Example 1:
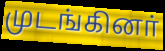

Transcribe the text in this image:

முடங்கினர்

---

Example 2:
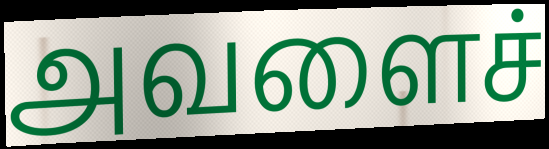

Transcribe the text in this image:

அவளைச்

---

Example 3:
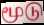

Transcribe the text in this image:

மூடு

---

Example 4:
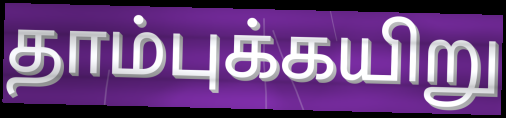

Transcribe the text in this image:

தாம்புக்கயிறு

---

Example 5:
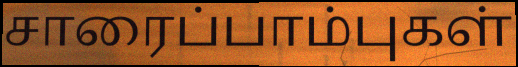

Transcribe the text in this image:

சாரைப்பாம்புகள்